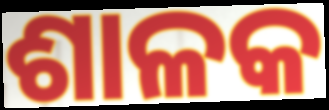
ଶାଳକ